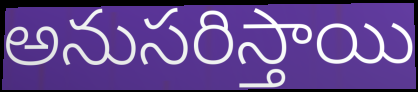
అనుసరిస్తాయి